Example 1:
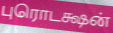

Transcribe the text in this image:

புரொடக்ஷன்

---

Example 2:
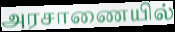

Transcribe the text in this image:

அரசாணையில்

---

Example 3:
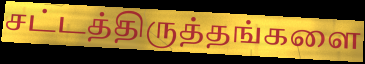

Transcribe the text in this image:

சட்டத்திருத்தங்களை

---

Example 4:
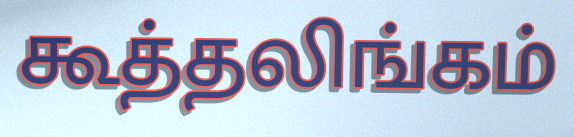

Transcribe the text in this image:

கூத்தலிங்கம்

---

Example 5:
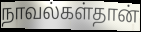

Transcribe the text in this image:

நாவல்கள்தான்